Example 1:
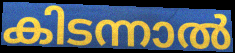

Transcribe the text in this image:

കിടന്നാൽ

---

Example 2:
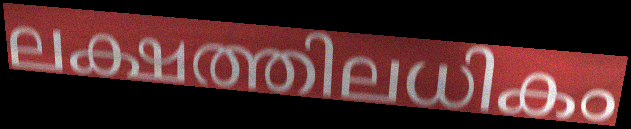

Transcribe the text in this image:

ലക്ഷത്തിലധികം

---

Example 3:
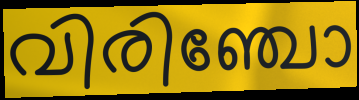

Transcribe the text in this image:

വിരിഞ്ചോ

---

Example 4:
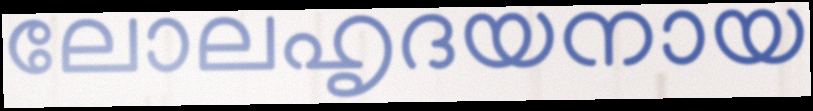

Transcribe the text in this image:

ലോലഹൃദയനായ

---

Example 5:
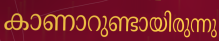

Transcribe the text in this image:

കാണാറുണ്ടായിരുന്നു